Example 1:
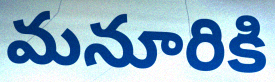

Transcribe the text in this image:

మనూరికి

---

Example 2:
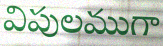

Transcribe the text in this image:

విపులముగా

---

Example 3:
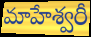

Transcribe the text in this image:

మాహేశ్వరీ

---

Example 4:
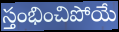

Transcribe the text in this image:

స్తంభించిపోయే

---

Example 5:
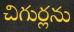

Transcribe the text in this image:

చిగుర్లను